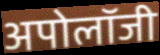
अपोलॉजी